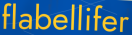
flabellifer